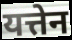
यत्तेन